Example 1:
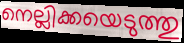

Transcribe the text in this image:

നെല്ലിക്കയെടുത്തു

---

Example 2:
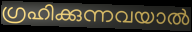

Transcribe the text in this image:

ഗ്രഹിക്കുന്നവയാൽ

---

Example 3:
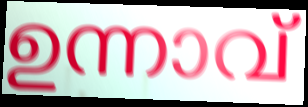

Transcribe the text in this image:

ഉന്നാവ്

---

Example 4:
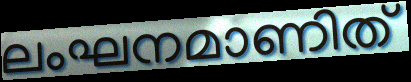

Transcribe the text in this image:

ലംഘനമാണിത്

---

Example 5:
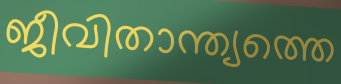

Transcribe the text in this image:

ജീവിതാന്ത്യത്തെ